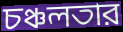
চঞ্চলতার